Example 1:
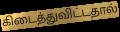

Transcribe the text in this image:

கிடைத்துவிட்டதால்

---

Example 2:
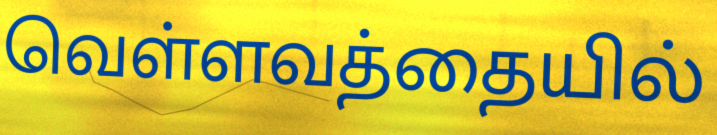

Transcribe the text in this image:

வெள்ளவத்தையில்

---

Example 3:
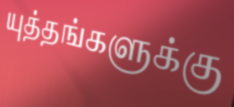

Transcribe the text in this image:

யுத்தங்களுக்கு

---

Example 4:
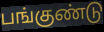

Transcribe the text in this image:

பங்குண்டு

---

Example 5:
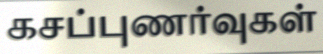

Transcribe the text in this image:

கசப்புணர்வுகள்